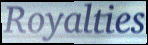
Royalties